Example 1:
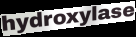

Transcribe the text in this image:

hydroxylase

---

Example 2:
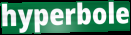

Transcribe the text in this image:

hyperbole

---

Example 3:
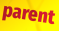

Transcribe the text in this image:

parent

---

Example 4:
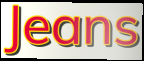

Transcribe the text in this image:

Jeans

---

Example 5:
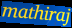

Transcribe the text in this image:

mathiraj